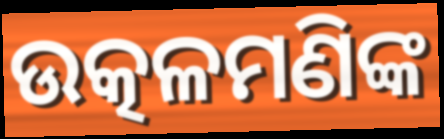
ଉତ୍କଳମଣିଙ୍କ